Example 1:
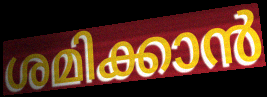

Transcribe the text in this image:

ശമിക്കാൻ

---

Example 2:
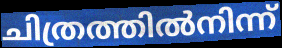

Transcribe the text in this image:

ചിത്രത്തിൽനിന്ന്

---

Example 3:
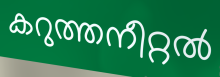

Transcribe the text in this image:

കറുത്തനീറ്റൽ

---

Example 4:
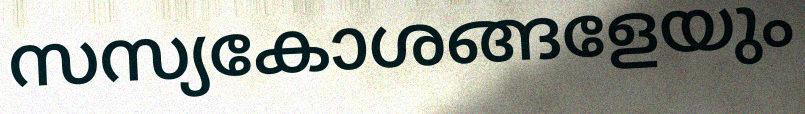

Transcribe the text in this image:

സസ്യകോശങ്ങളേയും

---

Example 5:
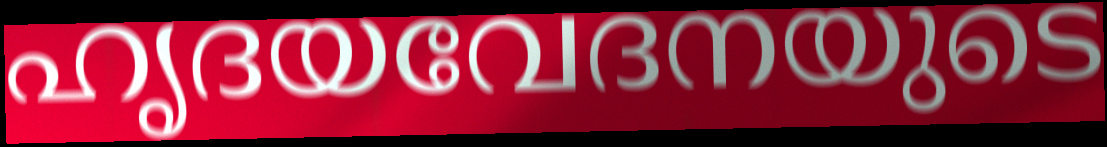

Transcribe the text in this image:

ഹൃദയവേദനയുടെ